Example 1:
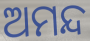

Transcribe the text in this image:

ଅମନ୍ଦ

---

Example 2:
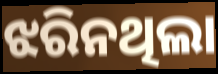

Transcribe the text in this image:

ଝରିନଥିଲା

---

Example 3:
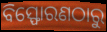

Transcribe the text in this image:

ବିସ୍ଫୋରଣଠାରୁ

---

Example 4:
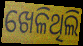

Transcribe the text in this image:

ଖେଳିଥିଲି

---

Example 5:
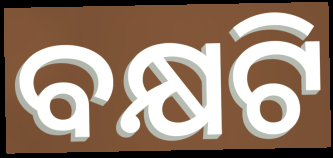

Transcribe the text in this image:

ବକ୍ଷଟି